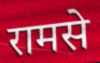
रामसे